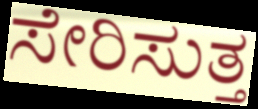
ಸೇರಿಸುತ್ತ